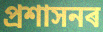
প্ৰশাসনৰ